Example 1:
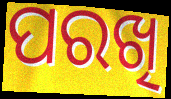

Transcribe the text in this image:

ପରଖି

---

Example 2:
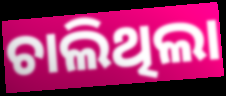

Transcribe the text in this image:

ଚାଲିଥିଲା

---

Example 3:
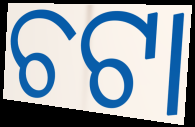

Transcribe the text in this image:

ଚଟା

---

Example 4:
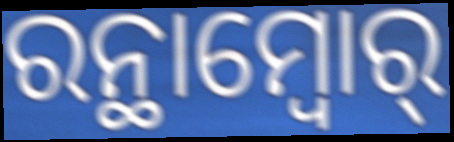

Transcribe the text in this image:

ରନ୍ଥାମ୍ବୋର୍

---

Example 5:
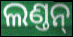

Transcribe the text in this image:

ଲଣ୍ତନ୍